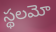
స్థలమో